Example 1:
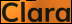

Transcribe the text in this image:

Clara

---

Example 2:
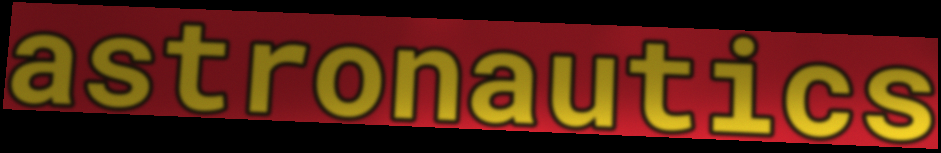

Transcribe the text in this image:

astronautics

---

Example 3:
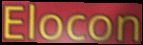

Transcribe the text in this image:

Elocon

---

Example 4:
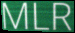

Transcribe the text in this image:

MLR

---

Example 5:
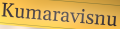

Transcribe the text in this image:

Kumaravisnu